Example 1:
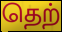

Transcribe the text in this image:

தெற்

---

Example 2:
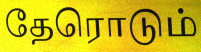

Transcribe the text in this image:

தேரொடும்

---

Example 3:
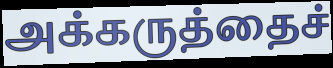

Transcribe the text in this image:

அக்கருத்தைச்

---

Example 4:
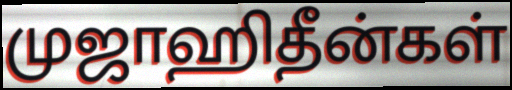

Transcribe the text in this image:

முஜாஹிதீன்கள்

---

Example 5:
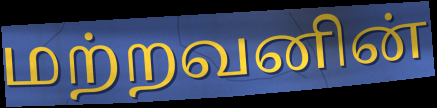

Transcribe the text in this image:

மற்றவனின்